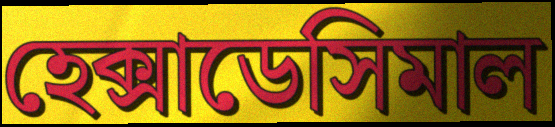
হেক্সাডেসিমাল